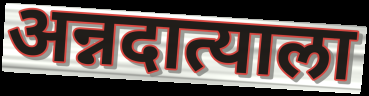
अन्नदात्याला